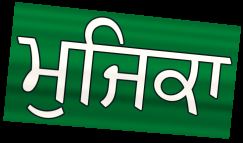
ਮੁਜਿਕਾ